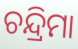
ଚନ୍ଦ୍ରିମା